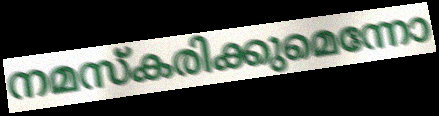
നമസ്കരിക്കുമെന്നോ